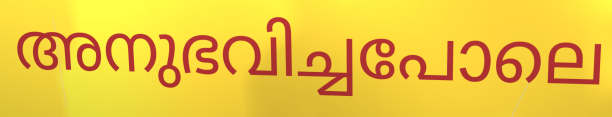
അനുഭവിച്ചപോലെ